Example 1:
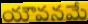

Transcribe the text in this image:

యౌవనమే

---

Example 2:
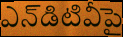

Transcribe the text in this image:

ఎన్‌డిటివీపై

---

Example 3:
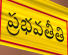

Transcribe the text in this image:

ప్రభవతీతి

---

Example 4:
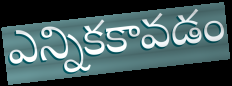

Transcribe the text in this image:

ఎన్నికకావడం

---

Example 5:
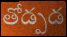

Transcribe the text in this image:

తోడ్పడ